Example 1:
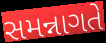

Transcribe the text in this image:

સમન્નાગતે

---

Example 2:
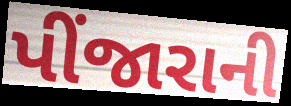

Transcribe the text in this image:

પીંજારાની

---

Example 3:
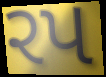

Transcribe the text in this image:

રપ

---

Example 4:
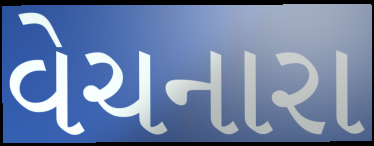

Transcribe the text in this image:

વેચનારા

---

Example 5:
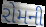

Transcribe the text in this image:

રોમની